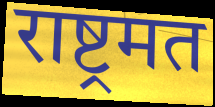
राष्ट्रमत